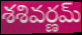
శశివర్ణమ్